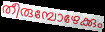
തീരുമ്പോഴേക്കും